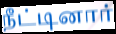
நீட்டினார்